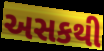
અસકથી